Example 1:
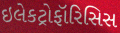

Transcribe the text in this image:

ઇલેકટ્રોફૉરિસિસ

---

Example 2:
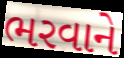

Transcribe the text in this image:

ભરવાને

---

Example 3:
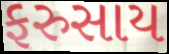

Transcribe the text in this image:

ફરુસાય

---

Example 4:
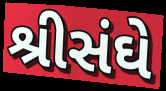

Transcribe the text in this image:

શ્રીસંઘે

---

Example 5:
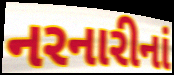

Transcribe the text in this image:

નરનારીનાં